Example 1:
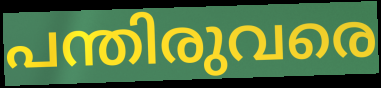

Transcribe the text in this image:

പന്തിരുവരെ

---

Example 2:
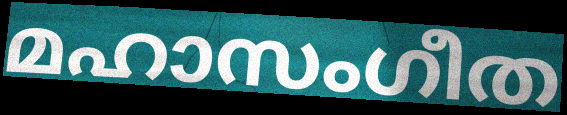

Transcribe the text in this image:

മഹാസംഗീത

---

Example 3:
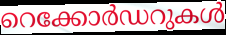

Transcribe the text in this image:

റെക്കോർഡറുകൾ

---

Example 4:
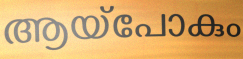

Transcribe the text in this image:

ആയ്പോകും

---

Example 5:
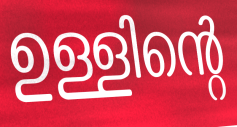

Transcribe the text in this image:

ഉള്ളിന്റെ